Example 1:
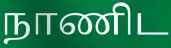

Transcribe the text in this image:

நாணிட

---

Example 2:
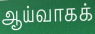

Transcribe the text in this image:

ஆய்வாகக்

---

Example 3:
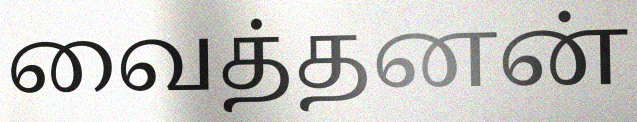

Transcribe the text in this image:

வைத்தனன்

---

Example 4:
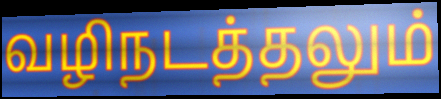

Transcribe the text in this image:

வழிநடத்தலும்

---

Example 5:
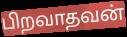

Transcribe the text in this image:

பிறவாதவன்